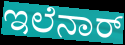
ಇಲೆನಾರ್